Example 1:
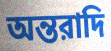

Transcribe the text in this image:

অন্তরাদি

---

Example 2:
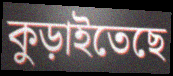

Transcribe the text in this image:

কুড়াইতেছে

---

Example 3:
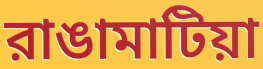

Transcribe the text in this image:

রাঙামাটিয়া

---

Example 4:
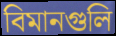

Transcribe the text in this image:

বিমানগুলি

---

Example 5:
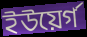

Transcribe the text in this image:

ইউয়ের্গ